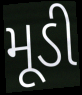
મૂડી